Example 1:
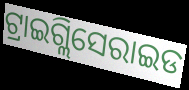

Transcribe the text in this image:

ଟ୍ରାଇଗ୍ଲିସେରାଇଡ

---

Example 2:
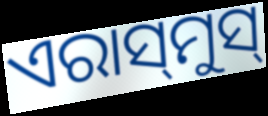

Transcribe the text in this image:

ଏରାସ୍‍ମୁସ୍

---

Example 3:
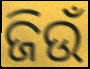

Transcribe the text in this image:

ଜିଉଁ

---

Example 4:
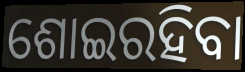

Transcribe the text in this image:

ଶୋଇରହିବା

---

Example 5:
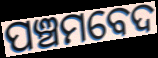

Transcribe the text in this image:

ପଞ୍ଚମବେଦ